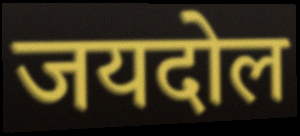
जयदोल